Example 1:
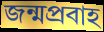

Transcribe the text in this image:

জন্মপ্রবাহ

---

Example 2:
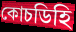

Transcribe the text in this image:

কোচডিহি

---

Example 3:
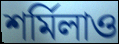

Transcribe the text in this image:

শর্মিলাও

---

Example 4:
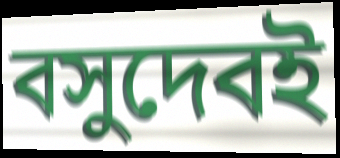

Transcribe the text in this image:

বসুদেবই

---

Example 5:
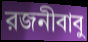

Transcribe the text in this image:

রজনীবাবু